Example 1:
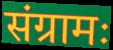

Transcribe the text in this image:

संग्रामः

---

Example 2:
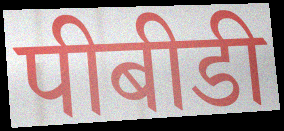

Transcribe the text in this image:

पीबीडी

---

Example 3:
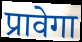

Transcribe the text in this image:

प्रावेगा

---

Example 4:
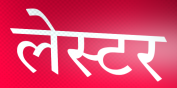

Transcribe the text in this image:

लेस्टर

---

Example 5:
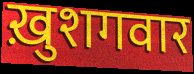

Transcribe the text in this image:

ख़ुशगवार